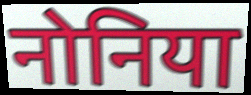
नोनिया